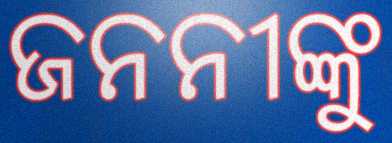
ଜନନୀଙ୍କୁ